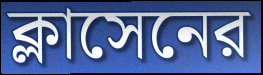
ক্লাসেনের